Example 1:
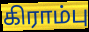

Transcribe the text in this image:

கிராம்பு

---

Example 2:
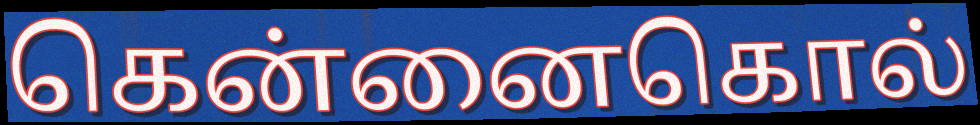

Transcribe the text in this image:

கென்னைகொல்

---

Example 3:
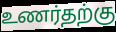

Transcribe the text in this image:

உணர்தற்கு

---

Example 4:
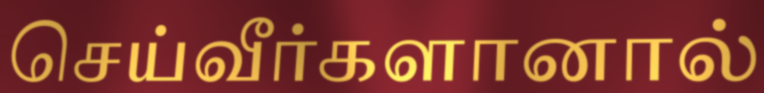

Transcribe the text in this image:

செய்வீர்களானால்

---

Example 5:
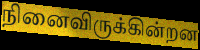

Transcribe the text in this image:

நினைவிருக்கின்றன